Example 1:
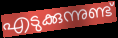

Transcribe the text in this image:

എടുക്കുന്നുണ്ട്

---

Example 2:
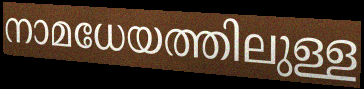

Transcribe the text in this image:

നാമധേയത്തിലുള്ള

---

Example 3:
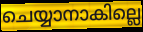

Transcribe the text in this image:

ചെയ്യാനാകില്ലെ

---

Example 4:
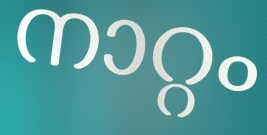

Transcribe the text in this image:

നാറ്റം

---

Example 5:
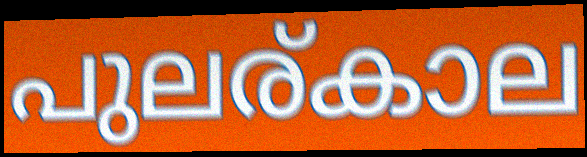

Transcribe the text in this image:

പുലര്കാല